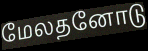
மேலதனோடு